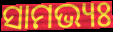
ସାମଭ୍ୟଃ